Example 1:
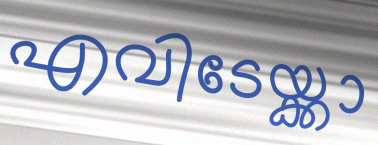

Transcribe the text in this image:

എവിടേയ്ക്കാ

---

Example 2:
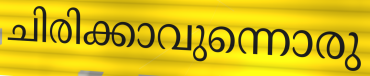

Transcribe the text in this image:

ചിരിക്കാവുന്നൊരു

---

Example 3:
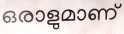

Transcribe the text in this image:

ഒരാളുമാണ്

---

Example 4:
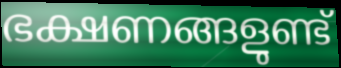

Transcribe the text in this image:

ഭക്ഷണങ്ങളുണ്ട്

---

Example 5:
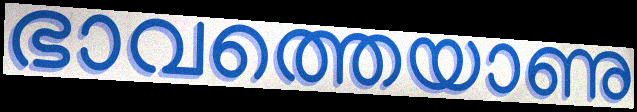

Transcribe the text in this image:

ഭാവത്തെയാണു